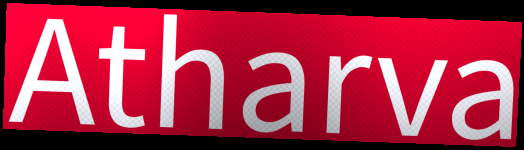
Atharva